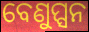
ବେଣୁପ୍ସନ